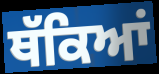
ਥੱਕਿਆਂ